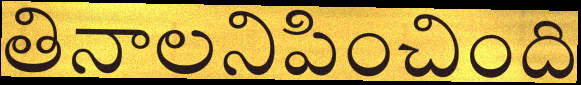
తినాలనిపించింది